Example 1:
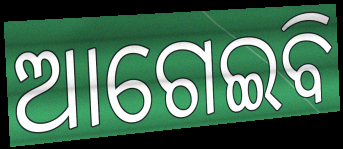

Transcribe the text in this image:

ଆଗେଇବି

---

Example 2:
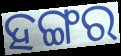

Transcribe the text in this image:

ହଙ୍ଗର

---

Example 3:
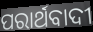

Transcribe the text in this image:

ପରାର୍ଥବାଦୀ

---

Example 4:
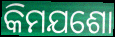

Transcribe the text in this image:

କିମଯଶୋ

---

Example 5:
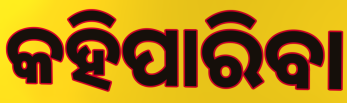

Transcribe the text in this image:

କହିପାରିବା